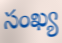
సంఖ్య